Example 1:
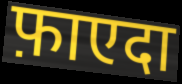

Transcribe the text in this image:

फ़ाएदा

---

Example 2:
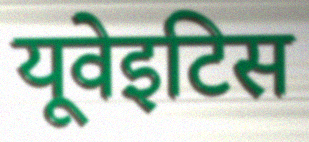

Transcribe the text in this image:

यूवेइटिस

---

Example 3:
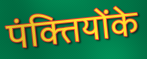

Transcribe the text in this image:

पंक्तियोंके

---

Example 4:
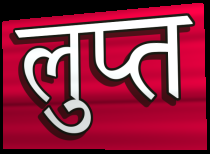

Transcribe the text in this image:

लुप्त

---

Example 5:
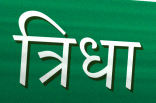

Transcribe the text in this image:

त्रिधा